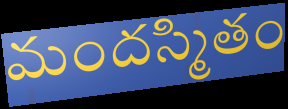
మందస్మితం